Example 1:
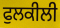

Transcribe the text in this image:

ਫੁਲਕੀਲੀ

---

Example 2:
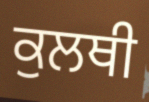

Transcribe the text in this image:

ਕੁਲਥੀ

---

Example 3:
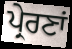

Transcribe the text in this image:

ਪ੍ਰੇਰਣਾਂ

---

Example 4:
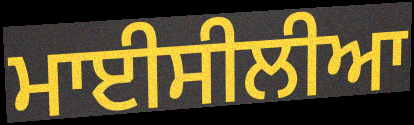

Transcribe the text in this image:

ਮਾਈਸੀਲੀਆ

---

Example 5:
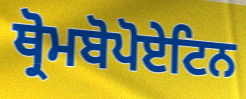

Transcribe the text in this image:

ਥ੍ਰੋਮਬੋਪੋਏਟਿਨ